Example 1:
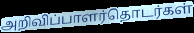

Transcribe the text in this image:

அறிவிப்பாளர்தொடர்கள்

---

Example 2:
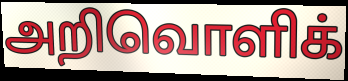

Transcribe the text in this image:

அறிவொளிக்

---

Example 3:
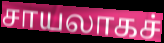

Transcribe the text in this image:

சாயலாகச்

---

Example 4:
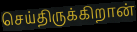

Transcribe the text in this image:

செய்திருக்கிறான்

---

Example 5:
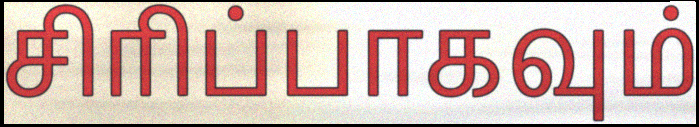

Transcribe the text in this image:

சிரிப்பாகவும்